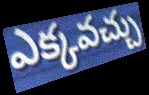
ఎక్కవచ్చు